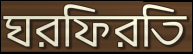
ঘরফিরতি